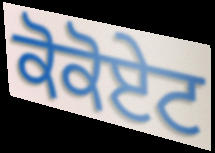
ਕੋਕੋਏਟ